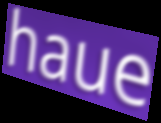
haue